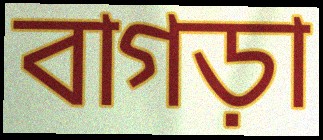
বাগড়া